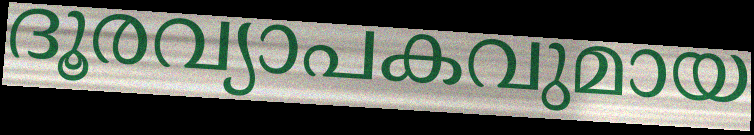
ദൂരവ്യാപകവുമായ